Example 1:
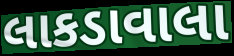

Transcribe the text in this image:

લાકડાવાલા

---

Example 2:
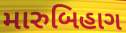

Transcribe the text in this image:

મારુબિહાગ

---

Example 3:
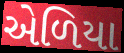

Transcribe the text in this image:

એળિયા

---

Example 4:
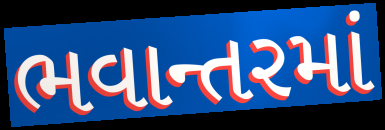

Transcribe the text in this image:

ભવાન્તરમાં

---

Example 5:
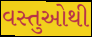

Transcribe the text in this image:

વસ્તુઓથી